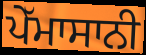
ਪੇੱਮਾਸਾਨੀ